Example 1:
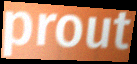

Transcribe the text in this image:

prout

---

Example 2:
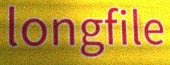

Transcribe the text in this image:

longfile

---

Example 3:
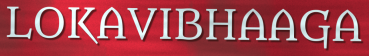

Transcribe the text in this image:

LOKAVIBHAAGA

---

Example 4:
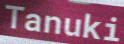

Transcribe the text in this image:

Tanuki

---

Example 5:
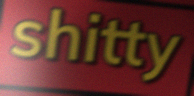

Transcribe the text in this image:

shitty